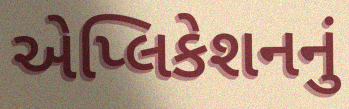
એપ્લિકેશનનું